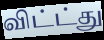
விட்ட்து